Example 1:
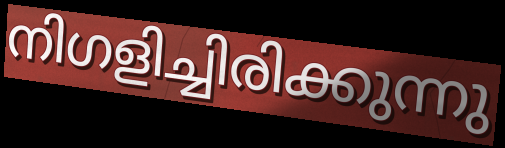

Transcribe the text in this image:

നിഗളിച്ചിരിക്കുന്നു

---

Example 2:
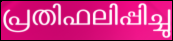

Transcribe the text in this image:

പ്രതിഫലിപ്പിച്ചു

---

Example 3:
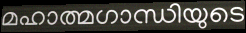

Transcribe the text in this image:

മഹാത്മഗാന്ധിയുടെ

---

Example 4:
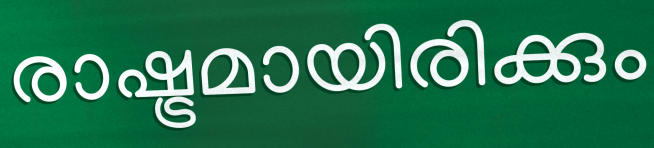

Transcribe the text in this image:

രാഷ്ട്രമായിരിക്കും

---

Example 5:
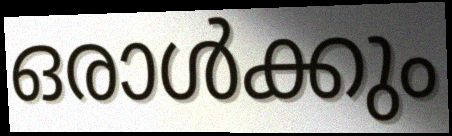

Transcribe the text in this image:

ഒരാൾക്കും